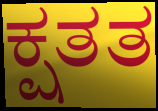
ಕ್ಷತತ